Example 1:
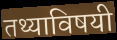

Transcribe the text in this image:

तथ्याविषयी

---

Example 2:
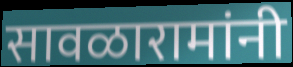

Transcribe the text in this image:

सावळारामांनी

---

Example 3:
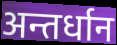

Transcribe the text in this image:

अन्तर्धान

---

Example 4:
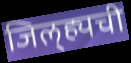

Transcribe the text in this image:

जिल्ह्यची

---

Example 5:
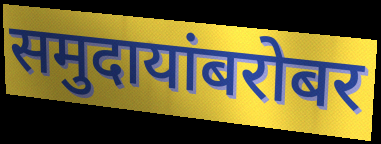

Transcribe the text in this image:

समुदायांबरोबर